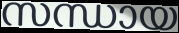
സന്ധായ